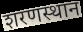
शरणस्थान